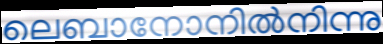
ലെബാനോനിൽനിന്നു